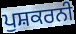
ਪੁਸ਼ਕਰਨੀ